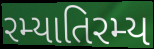
રમ્યાતિરમ્ય